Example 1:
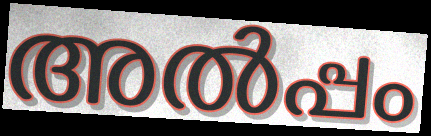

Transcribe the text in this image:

അൽപ്പം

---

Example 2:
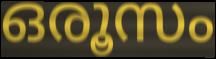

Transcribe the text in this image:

ഒരൂസം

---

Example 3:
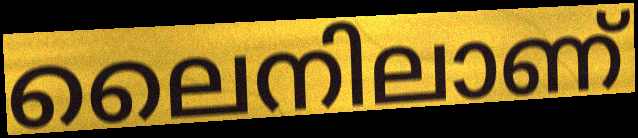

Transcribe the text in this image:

ലൈനിലാണ്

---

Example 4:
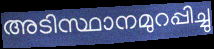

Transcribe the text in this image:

അടിസ്ഥാനമുറപ്പിച്ചു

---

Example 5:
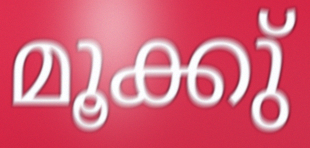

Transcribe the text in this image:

മൂക്കു്